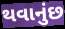
થવાનુંછ